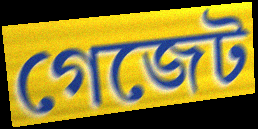
গেজেট